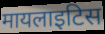
मायलाइटिस